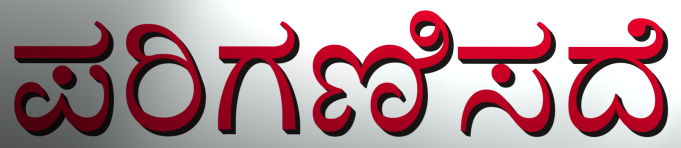
ಪರಿಗಣಿಸದೆ